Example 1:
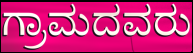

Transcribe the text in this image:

ಗ್ರಾಮದವರು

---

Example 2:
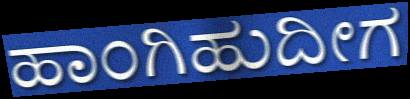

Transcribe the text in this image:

ಹಾಂಗಿಹುದೀಗ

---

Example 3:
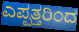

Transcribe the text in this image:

ಎಪ್ಪತ್ತರಿಂದ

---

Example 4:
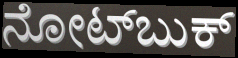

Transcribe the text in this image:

ನೋಟ್‌ಬುಕ್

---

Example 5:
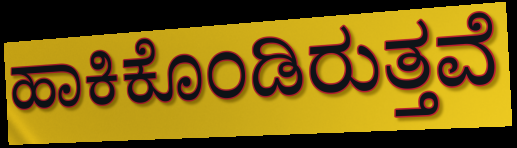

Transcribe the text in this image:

ಹಾಕಿಕೊಂಡಿರುತ್ತವೆ